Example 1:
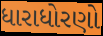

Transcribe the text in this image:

ધારાધોરણો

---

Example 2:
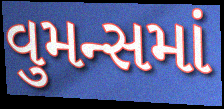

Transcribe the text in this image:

વુમન્સમાં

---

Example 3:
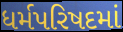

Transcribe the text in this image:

ધર્મપરિષદમાં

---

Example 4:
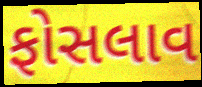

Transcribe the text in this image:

ફોસલાવ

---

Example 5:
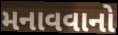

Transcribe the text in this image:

મનાવવાનો